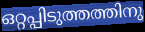
ഒറ്റപ്പിടുത്തത്തിനു